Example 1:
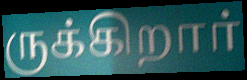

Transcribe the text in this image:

ருக்கிறார்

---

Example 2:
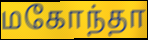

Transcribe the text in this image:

மகோந்தா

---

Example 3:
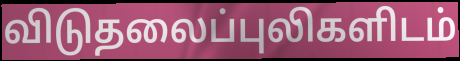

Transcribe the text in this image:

விடுதலைப்புலிகளிடம்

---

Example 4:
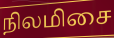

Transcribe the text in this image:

நிலமிசை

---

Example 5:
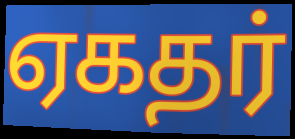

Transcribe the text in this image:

ஏகதர்